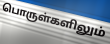
பொருள்களிலும்